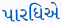
પારધિએ